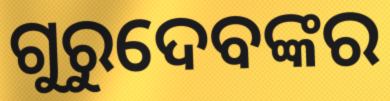
ଗୁରୁଦେବଙ୍କର